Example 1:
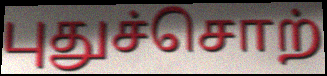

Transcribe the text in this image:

புதுச்சொற்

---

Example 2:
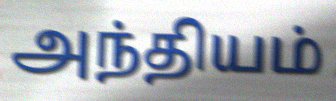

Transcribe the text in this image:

அந்தியம்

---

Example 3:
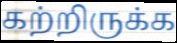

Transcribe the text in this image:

கற்றிருக்க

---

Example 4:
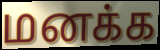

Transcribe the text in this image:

மனக்க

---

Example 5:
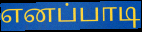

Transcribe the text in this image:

எனப்பாடி